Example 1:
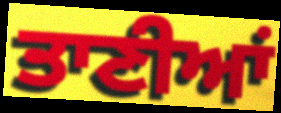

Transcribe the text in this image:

ਤਾਣੀਆਂ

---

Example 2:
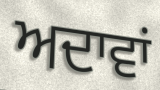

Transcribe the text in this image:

ਅਦਾਵਾਂ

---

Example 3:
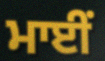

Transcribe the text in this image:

ਮਾਈਂ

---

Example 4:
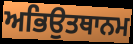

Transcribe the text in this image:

ਅਭਿਉਤਥਾਨਮ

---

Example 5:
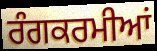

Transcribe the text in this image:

ਰੰਗਕਰਮੀਆਂ